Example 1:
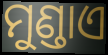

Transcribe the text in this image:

ମୁଣ୍ଡାଏ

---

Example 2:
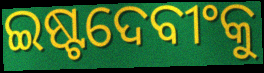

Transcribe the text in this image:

ଇଷ୍ଟଦେବୀଂକୁ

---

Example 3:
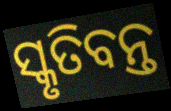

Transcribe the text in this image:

ସ୍କୃତିବନ୍ତ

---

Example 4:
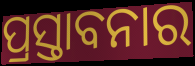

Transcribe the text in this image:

ପ୍ରସ୍ତାବନାର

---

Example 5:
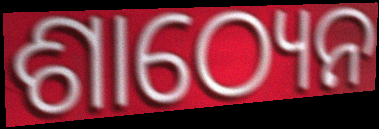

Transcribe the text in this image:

ଶାଠ୍ୟେନ